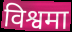
विश्वमा